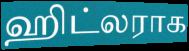
ஹிட்லராக